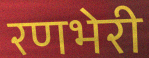
रणभेरी